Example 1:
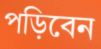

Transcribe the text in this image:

পড়িবেন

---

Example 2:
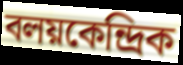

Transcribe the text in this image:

বলয়কেন্দ্রিক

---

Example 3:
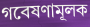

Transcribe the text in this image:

গবেষণামূলক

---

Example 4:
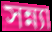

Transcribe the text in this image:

সন্ন্যা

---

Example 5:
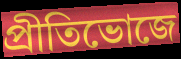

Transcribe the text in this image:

প্রীতিভোজে